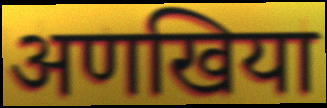
अणखिया